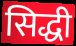
सिद्धी